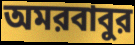
অমরবাবুর